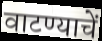
वाटण्याचें